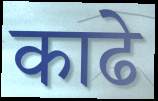
काढे